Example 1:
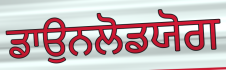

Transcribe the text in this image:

ਡਾਉਨਲੋਡਯੋਗ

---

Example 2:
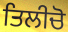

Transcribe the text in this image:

ਤਿਲੀਚੋ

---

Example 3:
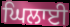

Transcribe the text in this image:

ਘਿਲਾਈ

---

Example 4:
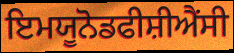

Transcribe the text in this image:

ਇਮਯੂਨੋਡਫੀਸ਼ੀਐਂਸੀ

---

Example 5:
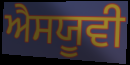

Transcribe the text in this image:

ਐਸਯੂਵੀ